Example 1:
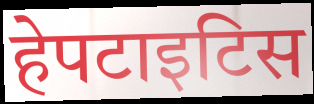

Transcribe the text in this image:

हेपटाइटिस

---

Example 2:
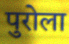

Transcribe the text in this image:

पुरोला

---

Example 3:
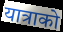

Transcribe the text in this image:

यात्राको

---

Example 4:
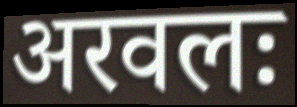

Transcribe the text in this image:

अरवलः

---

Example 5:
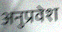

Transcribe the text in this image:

अनुप्रवेश